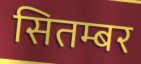
सितम्‍बर